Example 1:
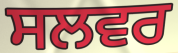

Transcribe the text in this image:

ਸਲਵਰ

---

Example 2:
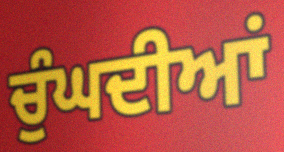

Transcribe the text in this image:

ਚੁੰਘਦੀਆਂ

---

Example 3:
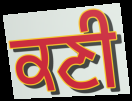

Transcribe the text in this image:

ਕਣੀ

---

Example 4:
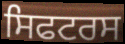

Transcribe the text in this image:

ਸਿਫਟਰਸ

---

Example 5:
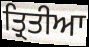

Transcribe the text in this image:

ਤ੍ਰਿਤੀਆ